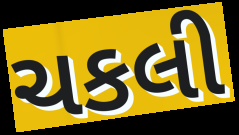
ચકલી